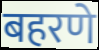
बहरणे